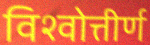
विश्वोत्तीर्ण